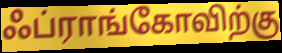
ஃப்ராங்கோவிற்கு